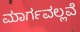
ಮಾರ್ಗವಲ್ಲವೆ